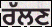
ਰੱਲਣ